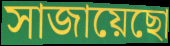
সাজায়েছো